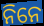
ନିନେ